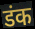
डंक